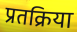
प्रतक्रिया